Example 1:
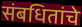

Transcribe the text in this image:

संबधितांचे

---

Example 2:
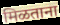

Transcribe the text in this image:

मिळताना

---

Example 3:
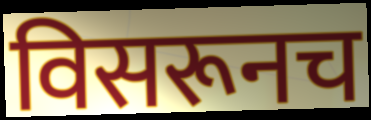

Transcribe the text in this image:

विसरूनच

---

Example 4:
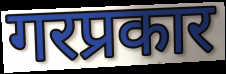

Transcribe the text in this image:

गरप्रकार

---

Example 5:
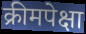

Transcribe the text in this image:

क्रीमपेक्षा